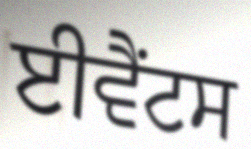
ਈਵੈਂਟਸ